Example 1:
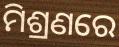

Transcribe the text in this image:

ମିଶ୍ରଣରେ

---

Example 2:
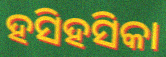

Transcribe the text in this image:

ହସିହସିକା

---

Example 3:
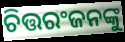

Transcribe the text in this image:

ଚିତ୍ତରଂଜନଙ୍କୁ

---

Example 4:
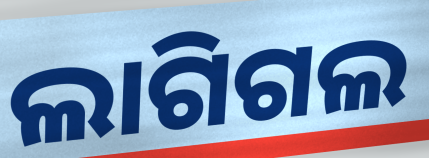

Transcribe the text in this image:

ଲାଗିଗଲ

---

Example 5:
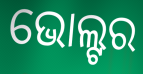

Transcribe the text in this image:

ଭୋଲ୍ଟର